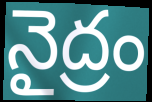
నైద్రం